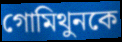
গোমিথুনকে